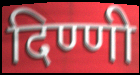
दिण्णी